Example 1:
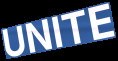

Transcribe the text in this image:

UNITE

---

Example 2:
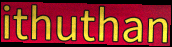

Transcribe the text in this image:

ithuthan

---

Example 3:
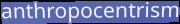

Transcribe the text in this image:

anthropocentrism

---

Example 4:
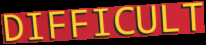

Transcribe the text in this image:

DIFFICULT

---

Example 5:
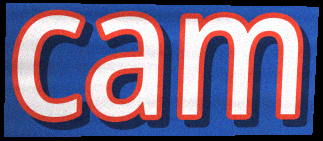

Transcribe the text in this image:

cam